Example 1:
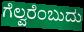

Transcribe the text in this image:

ಗೆಲ್ವರೆಂಬುದು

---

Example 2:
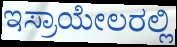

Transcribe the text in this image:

ಇಸ್ರಾಯೇಲರಲ್ಲಿ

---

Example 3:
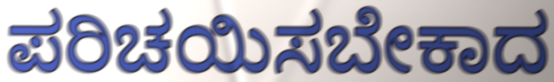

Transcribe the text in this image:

ಪರಿಚಯಿಸಬೇಕಾದ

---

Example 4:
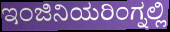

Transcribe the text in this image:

ಇಂಜಿನಿಯರಿಂಗ್ನಲ್ಲಿ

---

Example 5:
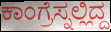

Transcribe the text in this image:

ಕಾಂಗ್ರೆಸ್ನಲ್ಲಿದ್ದ